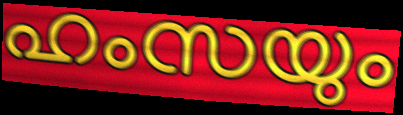
ഹംസയും